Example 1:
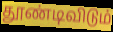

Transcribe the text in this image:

தூண்டிவிடும்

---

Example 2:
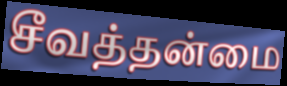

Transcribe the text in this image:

சீவத்தன்மை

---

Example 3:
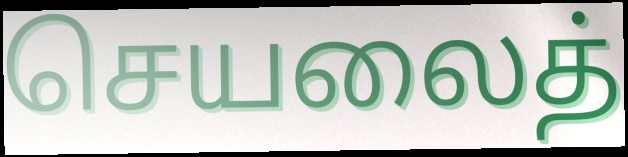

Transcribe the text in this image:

செயலைத்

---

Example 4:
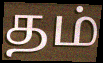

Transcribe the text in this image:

தம்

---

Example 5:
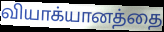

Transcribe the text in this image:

வியாக்யானத்தை